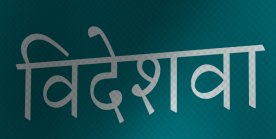
विदेशवा